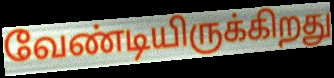
வேண்டியிருக்கிறது